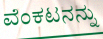
ವೆಂಕಟನನ್ನು